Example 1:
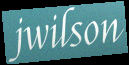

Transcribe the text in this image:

jwilson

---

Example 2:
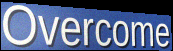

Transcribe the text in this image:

Overcome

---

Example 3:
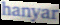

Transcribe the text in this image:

hanyar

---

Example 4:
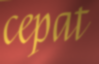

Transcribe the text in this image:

cepat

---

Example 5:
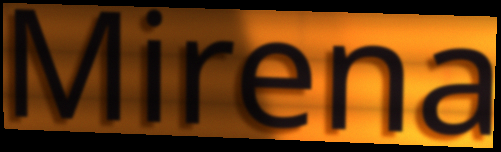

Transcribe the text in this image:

Mirena